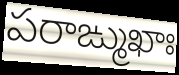
పరాఙ్ముఖాః